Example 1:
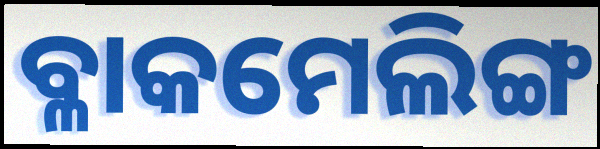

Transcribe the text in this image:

ବ୍ଳାକମେଲିଙ୍ଗ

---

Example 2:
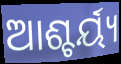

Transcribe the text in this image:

ଆଶ୍ଚର୍ୟ୍ଯ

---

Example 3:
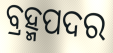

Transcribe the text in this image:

ବ୍ରହ୍ମପଦର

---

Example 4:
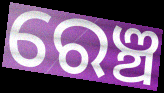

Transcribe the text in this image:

ରେଞ୍ଚ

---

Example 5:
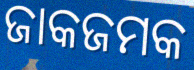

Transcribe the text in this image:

ଜାକଜମକ